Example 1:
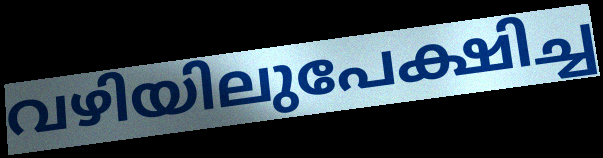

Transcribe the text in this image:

വഴിയിലുപേക്ഷിച്ച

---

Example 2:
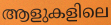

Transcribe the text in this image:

ആളുകളിലെ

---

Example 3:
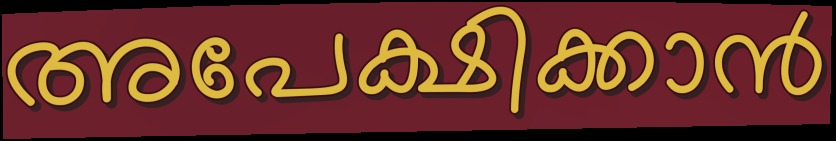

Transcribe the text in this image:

അപേക്ഷിക്കാൻ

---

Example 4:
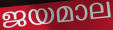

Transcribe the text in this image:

ജയമാല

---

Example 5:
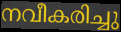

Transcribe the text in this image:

നവീകരിച്ചു